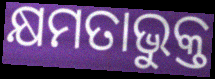
କ୍ଷମତାଭୁକ୍ତ